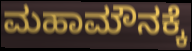
ಮಹಾಮೌನಕ್ಕೆ